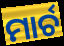
ମାର୍ଚ